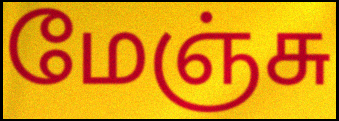
மேஞ்சு